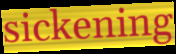
sickening